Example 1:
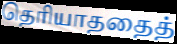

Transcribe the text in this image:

தெரியாததைத்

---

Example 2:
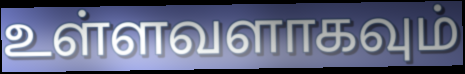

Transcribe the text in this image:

உள்ளவளாகவும்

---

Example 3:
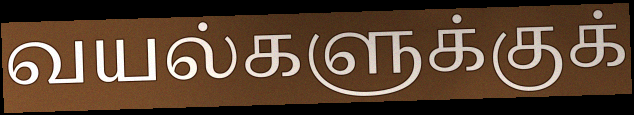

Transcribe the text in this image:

வயல்களுக்குக்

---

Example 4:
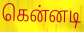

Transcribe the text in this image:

கென்னடி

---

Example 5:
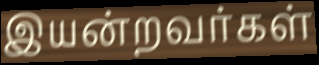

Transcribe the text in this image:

இயன்றவர்கள்